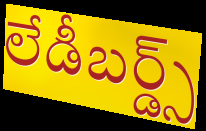
లేడీబర్డ్స్